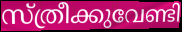
സ്ത്രീക്കുവേണ്ടി